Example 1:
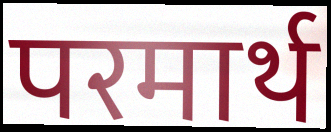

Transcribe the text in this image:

परमार्थ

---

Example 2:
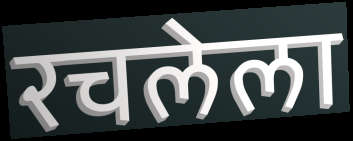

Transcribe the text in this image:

रचलेला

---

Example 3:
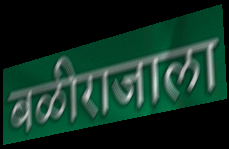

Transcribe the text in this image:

बळीराजाला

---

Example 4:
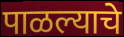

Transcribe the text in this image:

पाळल्याचे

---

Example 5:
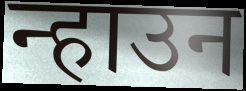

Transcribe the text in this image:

न्हाउन